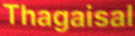
Thagaisal